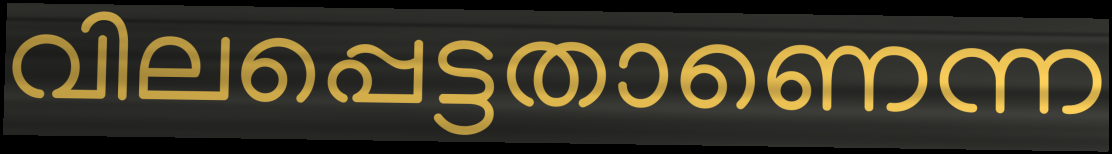
വിലപ്പെട്ടതാണെന്ന